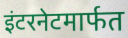
इंटरनेटमार्फत